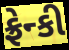
ફ્રેન્કી